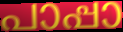
പാപ്പാ